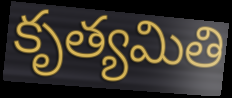
కృత్యమితి